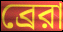
ব্রেরা